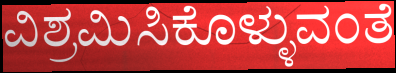
ವಿಶ್ರಮಿಸಿಕೊಳ್ಳುವಂತೆ